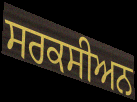
ਸਰਕਸੀਅਨ